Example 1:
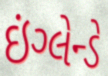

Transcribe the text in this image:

ઇંગ્લેન્ડે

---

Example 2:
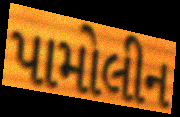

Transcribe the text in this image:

પામોલીન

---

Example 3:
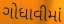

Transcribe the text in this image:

ગોધાવીમાં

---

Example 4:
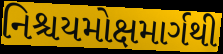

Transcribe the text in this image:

નિશ્ચયમોક્ષમાર્ગથી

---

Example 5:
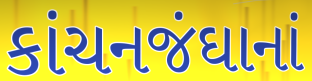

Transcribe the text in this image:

કાંચનજંઘાનાં